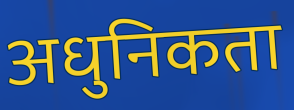
अधुनिकता